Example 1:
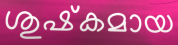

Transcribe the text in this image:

ശുഷ്‌കമായ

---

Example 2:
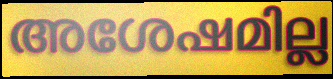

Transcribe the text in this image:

അശേഷമില്ല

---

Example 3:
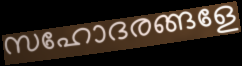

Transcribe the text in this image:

സഹോദരങ്ങളേ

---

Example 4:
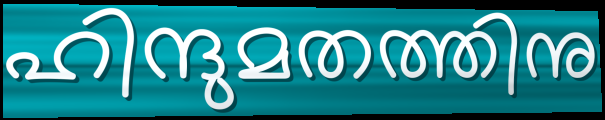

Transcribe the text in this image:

ഹിന്ദുമതത്തിനു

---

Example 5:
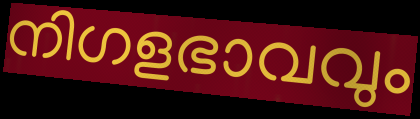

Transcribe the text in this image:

നിഗളഭാവവും